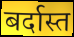
बर्दास्त